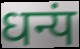
धन्यं